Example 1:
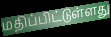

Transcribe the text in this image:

மதிப்பிட்டுள்ளது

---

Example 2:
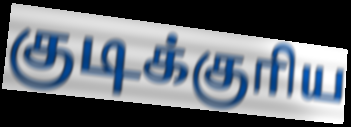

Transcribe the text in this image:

குடிக்குரிய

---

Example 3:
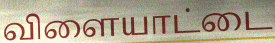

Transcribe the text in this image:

விளையாட்டை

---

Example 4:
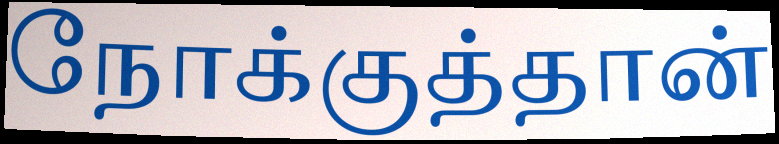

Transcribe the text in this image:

நோக்குத்தான்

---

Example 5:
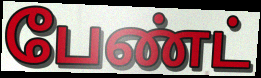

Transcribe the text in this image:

பேண்ட்